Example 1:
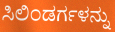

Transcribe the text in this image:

ಸಿಲಿಂಡರ್ಗಳನ್ನು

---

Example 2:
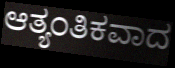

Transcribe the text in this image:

ಆತ್ಯಂತಿಕವಾದ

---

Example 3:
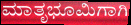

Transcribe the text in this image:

ಮಾತೃಭೂಮಿಗಾಗಿ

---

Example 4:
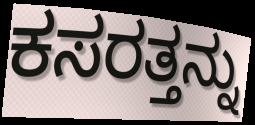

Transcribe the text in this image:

ಕಸರತ್ತನ್ನು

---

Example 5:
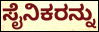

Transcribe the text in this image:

ಸೈನಿಕರನ್ನು